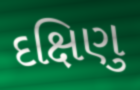
દક્ષિણુ